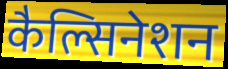
कैल्सिनेशन